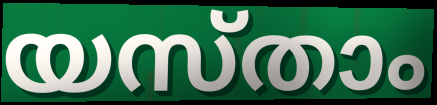
യസ്താം